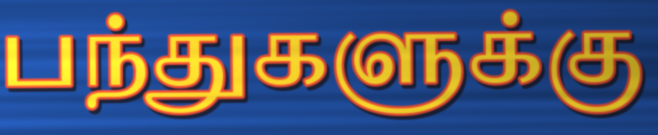
பந்துகளுக்கு